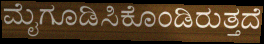
ಮೈಗೂಡಿಸಿಕೊಂಡಿರುತ್ತದೆ